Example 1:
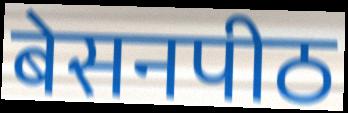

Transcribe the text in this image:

बेसनपीठ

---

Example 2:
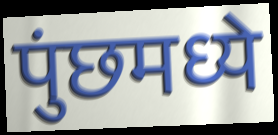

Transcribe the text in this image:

पुंछमध्ये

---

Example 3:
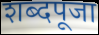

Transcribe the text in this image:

शब्दपूजा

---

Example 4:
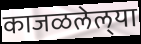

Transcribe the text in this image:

काजळलेल्या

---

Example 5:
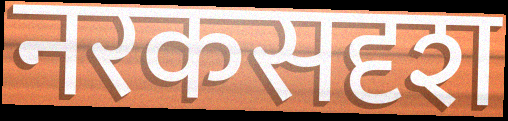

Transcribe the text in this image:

नरकसदृश